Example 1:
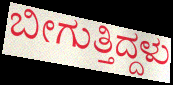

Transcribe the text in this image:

ಬೀಗುತ್ತಿದ್ದಳು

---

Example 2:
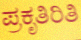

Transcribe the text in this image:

ಪ್ರಕೃತಿರಿತಿ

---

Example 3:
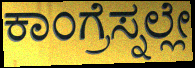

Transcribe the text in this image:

ಕಾಂಗ್ರೆಸ್ನಲ್ಲೇ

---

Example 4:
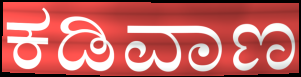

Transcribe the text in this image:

ಕಡಿವಾಣ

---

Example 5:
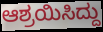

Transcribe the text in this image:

ಆಶ್ರಯಿಸಿದ್ದು